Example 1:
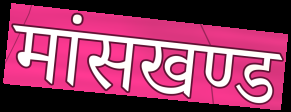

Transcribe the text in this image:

मांसखण्ड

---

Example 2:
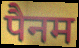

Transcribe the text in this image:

पैनम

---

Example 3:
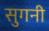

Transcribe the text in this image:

सुगनी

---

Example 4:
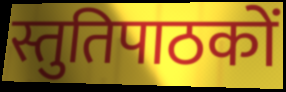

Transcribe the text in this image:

स्तुतिपाठकों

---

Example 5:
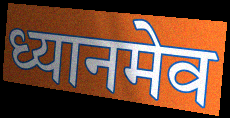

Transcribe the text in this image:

ध्यानमेव